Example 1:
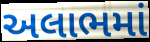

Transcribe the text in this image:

અલાભમાં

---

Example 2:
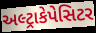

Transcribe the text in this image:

અલ્ટ્રાકેપેસિટર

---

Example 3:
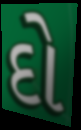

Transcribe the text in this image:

દો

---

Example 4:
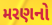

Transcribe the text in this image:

મરણનો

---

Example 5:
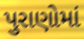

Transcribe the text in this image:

પુરાણોમાં